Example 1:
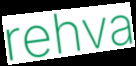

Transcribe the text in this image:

rehva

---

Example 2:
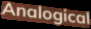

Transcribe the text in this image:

Analogical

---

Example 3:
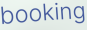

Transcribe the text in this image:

booking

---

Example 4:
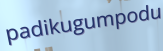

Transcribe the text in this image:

padikugumpodu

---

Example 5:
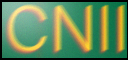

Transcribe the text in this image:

CNII